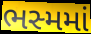
ભસ્મમાં